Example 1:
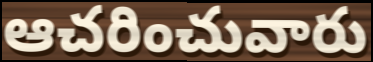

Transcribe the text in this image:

ఆచరించువారు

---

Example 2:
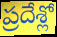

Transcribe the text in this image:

ప్రదేశ్లో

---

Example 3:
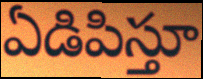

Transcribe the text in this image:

ఏడిపిస్తూ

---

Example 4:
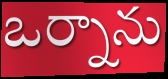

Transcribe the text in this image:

ఒర్నాను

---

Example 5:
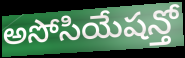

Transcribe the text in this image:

అసోసియేషన్తో